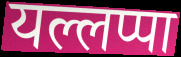
यल्लप्पा